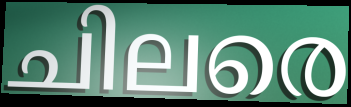
ചിലരെ